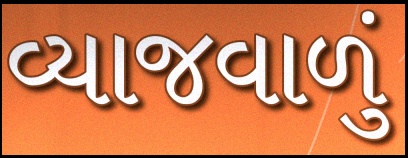
વ્યાજવાળું